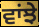
ਵਾਂਝੇ